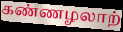
கண்ணழலாற்